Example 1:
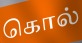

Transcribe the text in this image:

கொல்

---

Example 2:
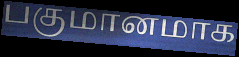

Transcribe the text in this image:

பகுமானமாக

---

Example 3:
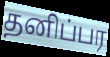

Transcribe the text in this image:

தனிப்பர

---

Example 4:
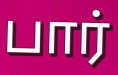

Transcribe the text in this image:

பார்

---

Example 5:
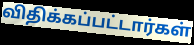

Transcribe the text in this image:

விதிக்கப்பட்டார்கள்